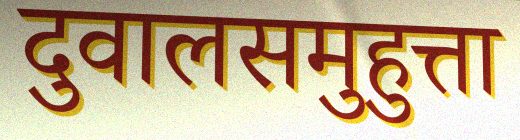
दुवालसमुहुत्ता